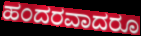
ಹಂದರವಾದರೂ